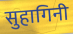
सुहागिनी